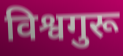
विश्वगुरू